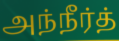
அந்நீர்த்